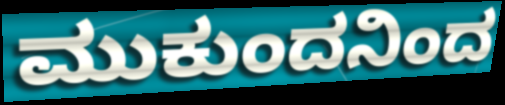
ಮುಕುಂದನಿಂದ